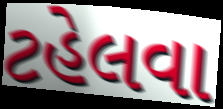
ટહેલવા